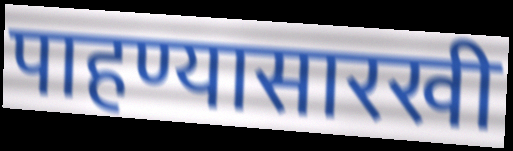
पाहण्यासारखी